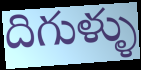
దిగుళ్ళు